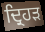
ਦ੍ਰਿਹੜ